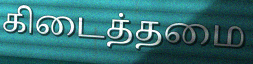
கிடைத்தமை